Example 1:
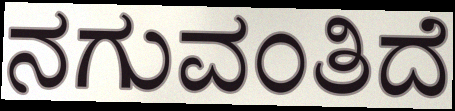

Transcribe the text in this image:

ನಗುವಂತಿದೆ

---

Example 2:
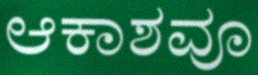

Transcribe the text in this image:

ಆಕಾಶವೂ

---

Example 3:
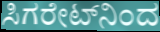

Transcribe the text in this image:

ಸಿಗರೇಟ್‌ನಿಂದ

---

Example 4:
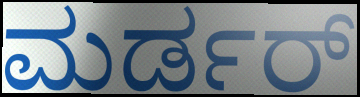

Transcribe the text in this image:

ಮರ್ಡರ್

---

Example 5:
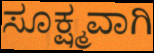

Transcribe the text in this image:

ಸೂಕ್ಷ್ಮವಾಗಿ